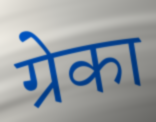
ग्रेका